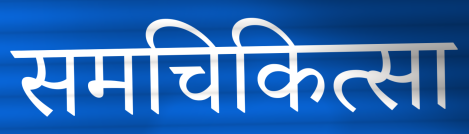
समचिकित्सा